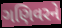
ગણિવરને